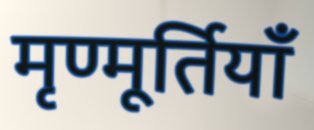
मृण्मूर्तियाँ